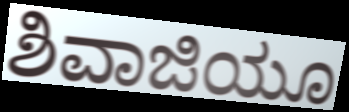
ಶಿವಾಜಿಯೂ